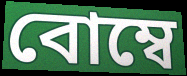
বোম্বে